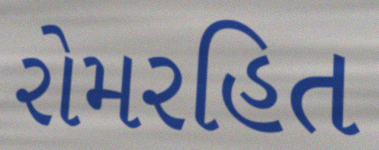
રોમરહિત